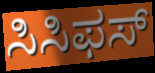
ಸಿಸಿಫಸ್